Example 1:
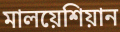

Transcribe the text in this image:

মালয়েশিয়ান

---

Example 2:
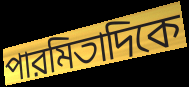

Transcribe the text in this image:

পারমিতাদিকে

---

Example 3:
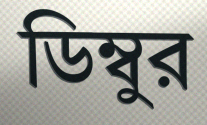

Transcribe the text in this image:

ডিম্বুর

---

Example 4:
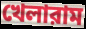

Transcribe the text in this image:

খেলারাম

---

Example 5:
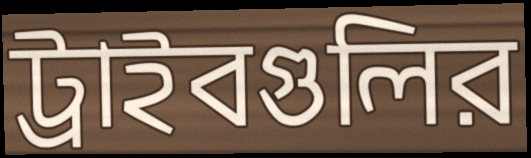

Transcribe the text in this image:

ট্রাইবগুলির